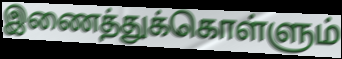
இணைத்துக்கொள்ளும்